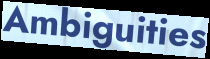
Ambiguities